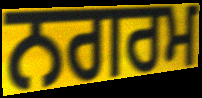
ਨਗਰਮ